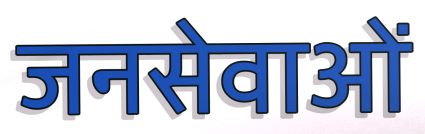
जनसेवाओं